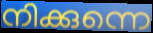
നിക്കുന്നെ